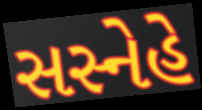
સસ્નેહે